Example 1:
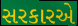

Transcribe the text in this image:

સરકારએ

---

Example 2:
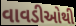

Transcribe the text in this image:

વાવડીઓથી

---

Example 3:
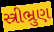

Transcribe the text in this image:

સ્ત્રીભ્રુણ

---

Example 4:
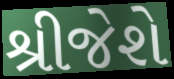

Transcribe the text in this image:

શ્રીજેશે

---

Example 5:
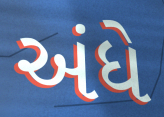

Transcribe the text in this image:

અંધે